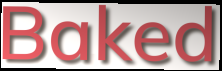
Baked